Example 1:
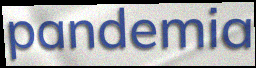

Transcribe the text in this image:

pandemia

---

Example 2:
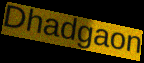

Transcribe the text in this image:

Dhadgaon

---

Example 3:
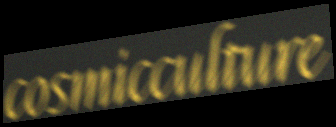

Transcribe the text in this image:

cosmicculture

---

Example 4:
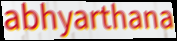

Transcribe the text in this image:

abhyarthana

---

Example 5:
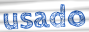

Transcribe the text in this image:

usado